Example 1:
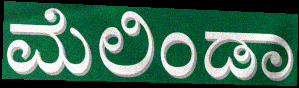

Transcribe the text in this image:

ಮೆಲಿಂಡಾ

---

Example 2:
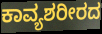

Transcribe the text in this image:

ಕಾವ್ಯಶರೀರದ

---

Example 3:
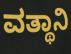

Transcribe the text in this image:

ವತ್ಥಾನಿ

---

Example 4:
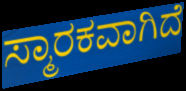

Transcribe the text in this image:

ಸ್ಮಾರಕವಾಗಿದೆ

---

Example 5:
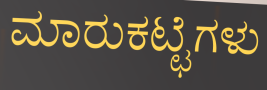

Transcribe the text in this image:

ಮಾರುಕಟ್ಟೆಗಳು